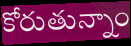
కోరుతున్నాం